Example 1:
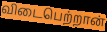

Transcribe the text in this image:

விடைபெற்றான்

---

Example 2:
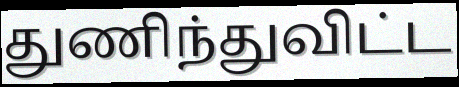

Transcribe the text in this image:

துணிந்துவிட்ட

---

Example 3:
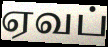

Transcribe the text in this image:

ஏவப்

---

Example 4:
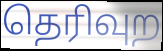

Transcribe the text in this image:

தெரிவுற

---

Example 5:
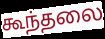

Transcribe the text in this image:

கூந்தலை